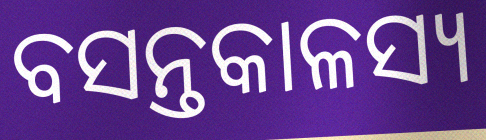
ବସନ୍ତକାଳସ୍ୟ